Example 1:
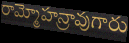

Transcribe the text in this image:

రామ్మోహన్రావుగారు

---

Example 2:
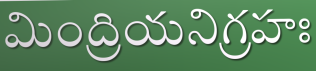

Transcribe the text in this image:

మింద్రియనిగ్రహః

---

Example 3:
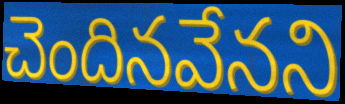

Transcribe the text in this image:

చెందినవేనని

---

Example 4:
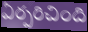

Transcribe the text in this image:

ఏర్పరిచింది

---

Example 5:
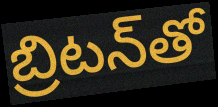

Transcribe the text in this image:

బ్రిటన్‌తో